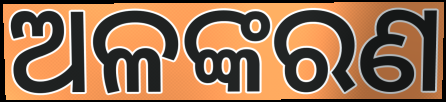
ଅଳଙ୍କରଣ